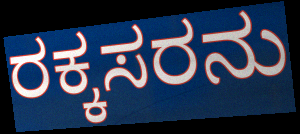
ರಕ್ಕಸರನು